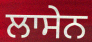
ਲਾਸੇਨ